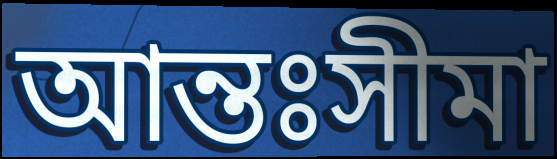
আন্তঃসীমা